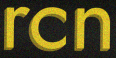
rcn